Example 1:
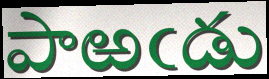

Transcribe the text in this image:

పాఱఁడు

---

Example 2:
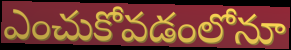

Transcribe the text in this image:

ఎంచుకోవడంలోనూ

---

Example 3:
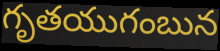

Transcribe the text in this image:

గృతయుగంబున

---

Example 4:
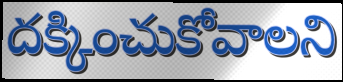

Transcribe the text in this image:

దక్కించుకోవాలని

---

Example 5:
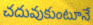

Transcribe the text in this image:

చదువుకుంటూనే